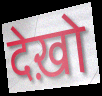
देख़ो